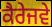
ਕੈਰੇਜਵੇ